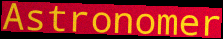
Astronomer